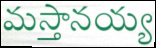
మస్తానయ్య